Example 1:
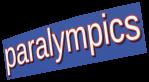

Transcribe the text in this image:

paralympics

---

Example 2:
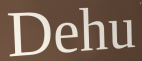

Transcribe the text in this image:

Dehu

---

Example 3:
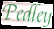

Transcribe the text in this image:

Pedley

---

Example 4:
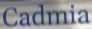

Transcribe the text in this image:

Cadmia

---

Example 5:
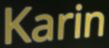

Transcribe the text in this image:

Karin